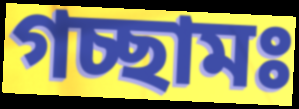
গচ্ছামঃ